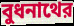
বুধনাথের